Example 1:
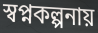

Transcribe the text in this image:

স্বপ্নকল্পনায়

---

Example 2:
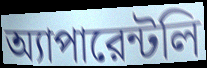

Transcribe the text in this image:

অ্যাপারেন্টলি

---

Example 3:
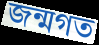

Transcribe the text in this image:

জন্মগত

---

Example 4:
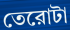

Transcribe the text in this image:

তেরোটা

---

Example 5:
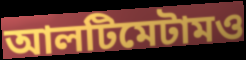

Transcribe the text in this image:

আলটিমেটামও